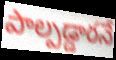
పాల్పడ్డారనే